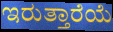
ಇರುತ್ತಾರೆಯೆ